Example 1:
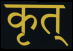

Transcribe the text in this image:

कृत्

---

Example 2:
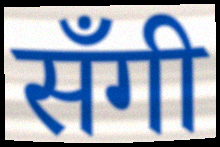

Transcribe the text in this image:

सँगी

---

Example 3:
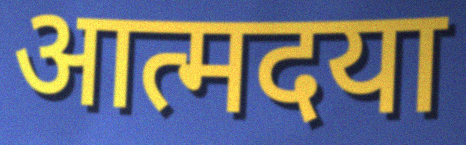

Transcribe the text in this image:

आत्मदया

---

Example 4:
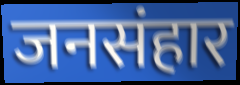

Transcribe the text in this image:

जनसंहार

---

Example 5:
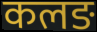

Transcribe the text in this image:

कलङ